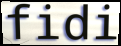
fidi